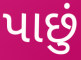
પાછું